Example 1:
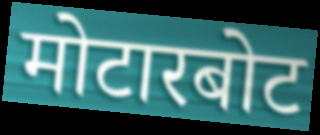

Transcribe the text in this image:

मोटारबोट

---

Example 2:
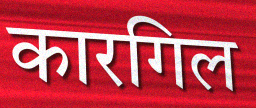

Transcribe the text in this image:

कारगिल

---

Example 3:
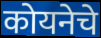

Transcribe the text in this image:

कोयनेचे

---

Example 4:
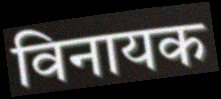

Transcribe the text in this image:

विनायक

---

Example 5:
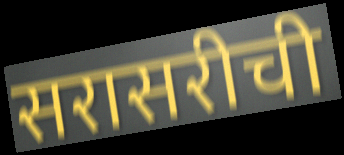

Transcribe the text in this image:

सरासरीची